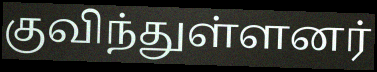
குவிந்துள்ளனர்